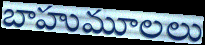
బాహుమూలలు